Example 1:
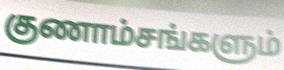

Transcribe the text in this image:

குணாம்சங்களும்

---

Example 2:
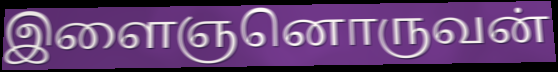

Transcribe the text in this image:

இளைஞனொருவன்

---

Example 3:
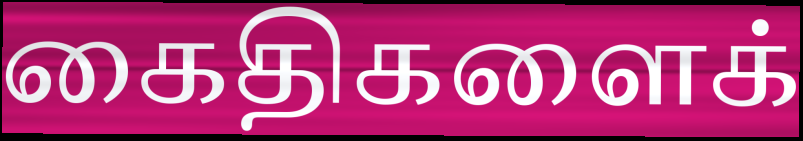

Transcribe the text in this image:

கைதிகளைக்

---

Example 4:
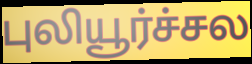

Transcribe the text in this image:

புலியூர்ச்சல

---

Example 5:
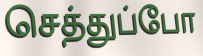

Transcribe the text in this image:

செத்துப்போ